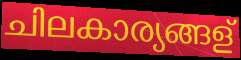
ചിലകാര്യങ്ങള്